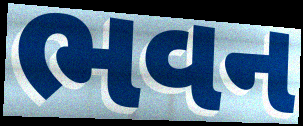
ભવન